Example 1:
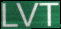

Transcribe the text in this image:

LVT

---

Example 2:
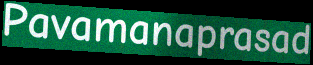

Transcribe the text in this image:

Pavamanaprasad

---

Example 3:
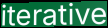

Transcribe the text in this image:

iterative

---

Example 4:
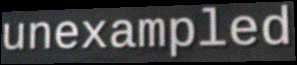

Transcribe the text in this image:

unexampled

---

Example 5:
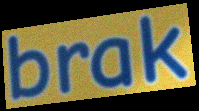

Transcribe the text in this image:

brak